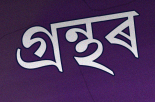
গ্ৰন্থৰ